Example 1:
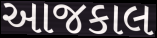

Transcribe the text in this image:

આજકાલ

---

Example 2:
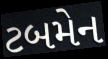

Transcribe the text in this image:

ટબમેન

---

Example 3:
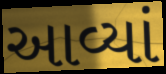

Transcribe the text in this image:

આવ્યાં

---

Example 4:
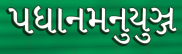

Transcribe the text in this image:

પધાનમનુયુઞ્જ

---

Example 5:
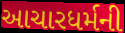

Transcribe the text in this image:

આચારધર્મની